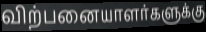
விற்பனையாளர்களுக்கு